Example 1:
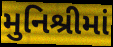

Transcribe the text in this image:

મુનિશ્રીમાં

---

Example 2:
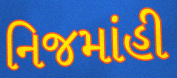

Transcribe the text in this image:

નિજમાંહી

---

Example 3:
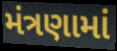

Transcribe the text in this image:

મંત્રણામાં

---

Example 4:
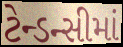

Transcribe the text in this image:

ટેન્ડન્સીમાં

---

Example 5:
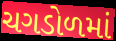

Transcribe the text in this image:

ચગડોળમાં